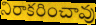
నిరాకరించావు